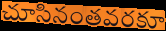
చూసినంతవరకూ